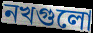
নখগুলো